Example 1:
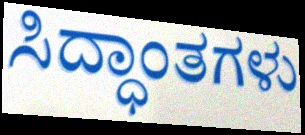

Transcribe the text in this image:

ಸಿದ್ಧಾಂತಗಳು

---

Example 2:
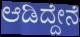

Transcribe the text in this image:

ಆಡಿದ್ದೇನೆ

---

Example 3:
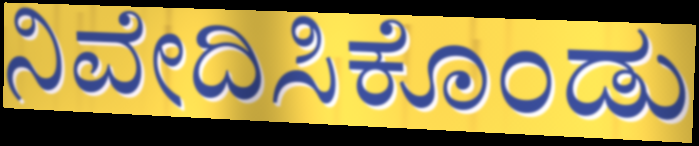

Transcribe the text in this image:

ನಿವೇದಿಸಿಕೊಂಡು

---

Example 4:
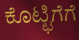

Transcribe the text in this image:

ಕೊಟ್ಟಿಗೆಗೆ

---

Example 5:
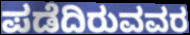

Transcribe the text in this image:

ಪಡೆದಿರುವವರ